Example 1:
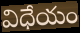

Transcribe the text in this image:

విధేయం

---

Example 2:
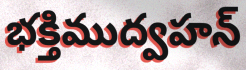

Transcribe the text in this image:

భక్తిముద్వహన్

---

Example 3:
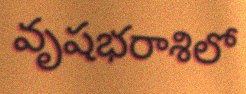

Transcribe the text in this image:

వృషభరాశిలో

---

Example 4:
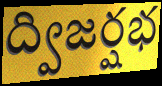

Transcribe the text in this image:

ద్విజర్షభ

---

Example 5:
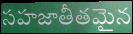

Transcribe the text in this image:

సహజాతీతమైన